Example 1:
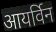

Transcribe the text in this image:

आयर्विन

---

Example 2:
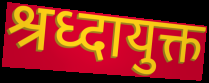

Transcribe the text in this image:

श्रध्दायुक्त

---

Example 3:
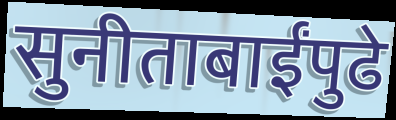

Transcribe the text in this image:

सुनीताबाईंपुढे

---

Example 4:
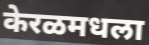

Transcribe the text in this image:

केरळमधला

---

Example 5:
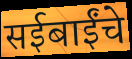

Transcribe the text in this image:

सईबाईंचे